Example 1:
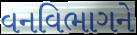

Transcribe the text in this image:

વનવિભાગને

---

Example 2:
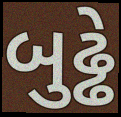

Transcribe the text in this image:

બુઢ્ઢે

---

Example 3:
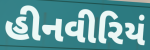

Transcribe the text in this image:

હીનવીરિયં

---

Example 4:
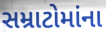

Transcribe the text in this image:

સમ્રાટોમાંના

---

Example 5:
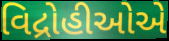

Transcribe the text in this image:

વિદ્રોહીઓએ